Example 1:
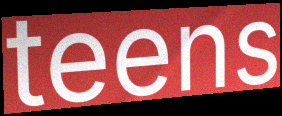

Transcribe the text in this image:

teens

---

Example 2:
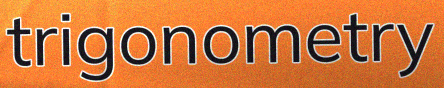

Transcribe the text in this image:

trigonometry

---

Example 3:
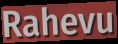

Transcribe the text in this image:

Rahevu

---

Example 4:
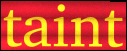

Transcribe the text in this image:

taint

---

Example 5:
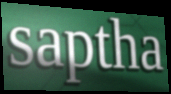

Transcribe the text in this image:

saptha